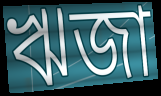
ঋজা